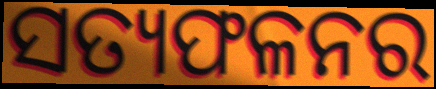
ସତ୍ୟଫଳନର